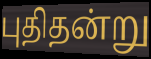
புதிதன்று